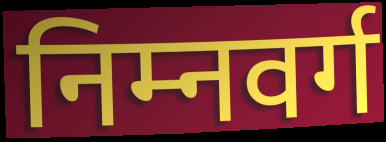
निम्नवर्ग